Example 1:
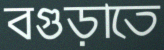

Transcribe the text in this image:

বগুড়াতে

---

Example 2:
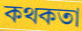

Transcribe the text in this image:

কথকতা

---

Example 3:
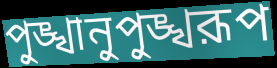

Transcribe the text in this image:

পুঙ্খানুপুঙ্খরূপ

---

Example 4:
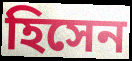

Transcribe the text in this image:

হিসেন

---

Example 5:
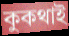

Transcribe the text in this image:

কুকথাই